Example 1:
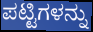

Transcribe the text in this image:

ಪಟ್ಟಿಗಳನ್ನು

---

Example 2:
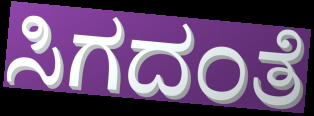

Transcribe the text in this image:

ಸಿಗದಂತೆ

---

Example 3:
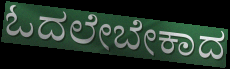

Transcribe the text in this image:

ಓದಲೇಬೇಕಾದ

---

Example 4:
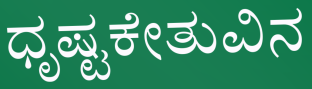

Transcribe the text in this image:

ಧೃಷ್ಟಕೇತುವಿನ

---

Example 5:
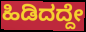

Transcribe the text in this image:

ಹಿಡಿದದ್ದೇ